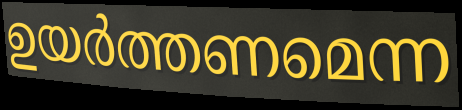
ഉയർത്തണമെന്ന